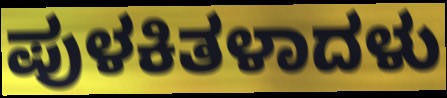
ಪುಳಕಿತಳಾದಳು